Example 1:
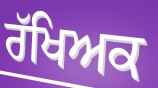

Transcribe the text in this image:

ਰੱਖਿਅਕ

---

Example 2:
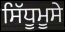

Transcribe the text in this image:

ਸਿੱਧੂਮੂਸੇ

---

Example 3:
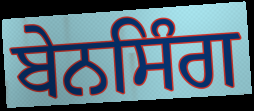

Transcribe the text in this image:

ਬੇਨਸਿੰਗ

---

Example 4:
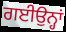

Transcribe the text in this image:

ਗਈਉਨ੍ਹਾਂ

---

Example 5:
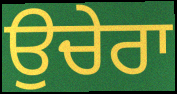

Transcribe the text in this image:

ਉਚੇਰਾ